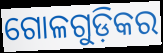
ଗୋଳଗୁଡ଼ିକର